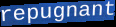
repugnant